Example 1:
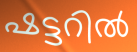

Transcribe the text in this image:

ഷട്ടറിൽ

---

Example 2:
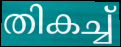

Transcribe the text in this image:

തികച്ച്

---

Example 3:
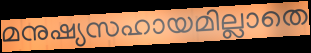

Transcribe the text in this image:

മനുഷ്യസഹായമില്ലാതെ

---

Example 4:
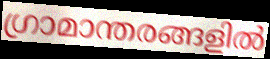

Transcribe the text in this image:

ഗ്രാമാന്തരങ്ങളിൽ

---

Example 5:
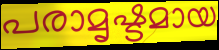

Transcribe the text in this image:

പരാമൃഷ്ടമായ